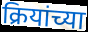
क्रियांच्या